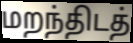
மறந்திடத்